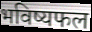
भविष्यफल